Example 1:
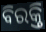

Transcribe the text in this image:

ବିରକ୍ତି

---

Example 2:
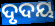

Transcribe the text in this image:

ଦୃଦୟ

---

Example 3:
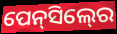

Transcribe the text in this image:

ପେନ୍‍ସିଲ୍‍ରେ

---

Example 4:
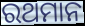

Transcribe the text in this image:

ରଥମାନ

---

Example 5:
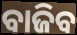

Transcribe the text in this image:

ବାଜିବ